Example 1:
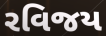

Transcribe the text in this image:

રવિજય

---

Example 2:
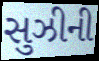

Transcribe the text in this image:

સુઝીની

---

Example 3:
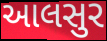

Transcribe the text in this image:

આલસુર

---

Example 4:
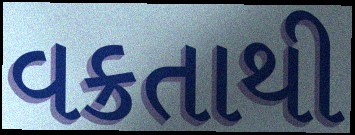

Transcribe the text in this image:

વક્રતાથી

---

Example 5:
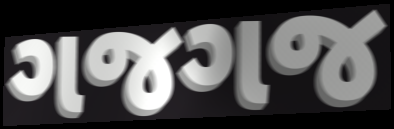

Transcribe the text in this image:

ગજગજ